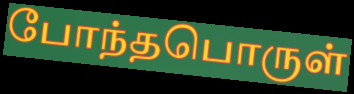
போந்தபொருள்